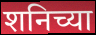
शनिच्या